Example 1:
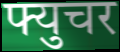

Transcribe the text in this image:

फ्युचर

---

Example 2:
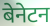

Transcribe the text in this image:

बेनेटन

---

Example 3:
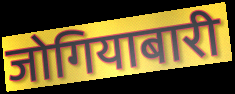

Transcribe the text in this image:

जोगियाबारी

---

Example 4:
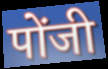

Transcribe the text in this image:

पोंजी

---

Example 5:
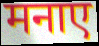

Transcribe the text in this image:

मनाए